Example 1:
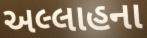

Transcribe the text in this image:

અલ્લાહના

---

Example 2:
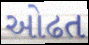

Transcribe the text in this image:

ઓઢત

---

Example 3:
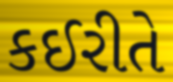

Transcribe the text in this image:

કઈરીતે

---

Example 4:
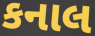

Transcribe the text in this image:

કનાલ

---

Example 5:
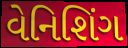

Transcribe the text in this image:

વેનિશિંગ